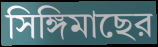
সিঙ্গিমাছের